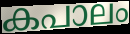
കപാലം